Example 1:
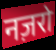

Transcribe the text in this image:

नज़रो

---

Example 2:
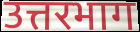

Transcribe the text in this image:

उत्तरभाग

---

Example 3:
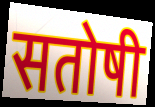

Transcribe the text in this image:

सतोषी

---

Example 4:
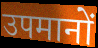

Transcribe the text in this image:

उपमानों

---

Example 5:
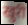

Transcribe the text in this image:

खुरी